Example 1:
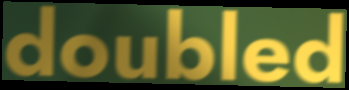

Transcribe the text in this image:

doubled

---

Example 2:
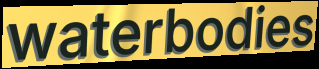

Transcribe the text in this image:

waterbodies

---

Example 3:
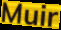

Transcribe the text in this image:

Muir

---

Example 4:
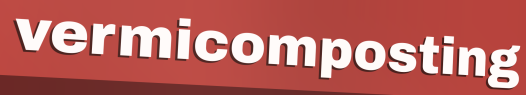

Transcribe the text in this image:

vermicomposting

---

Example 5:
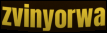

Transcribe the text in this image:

zvinyorwa